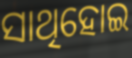
ସାଥିହୋଇ